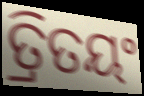
ତ୍ରିତୟଂ